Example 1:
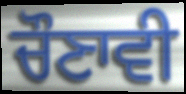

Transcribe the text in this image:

ਚੌਣਾਵੀ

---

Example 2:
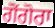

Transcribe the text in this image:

ਗੋਂਗੋਰਾ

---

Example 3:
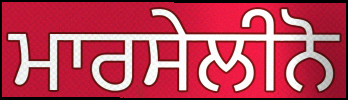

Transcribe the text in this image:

ਮਾਰਸੇਲੀਨੋ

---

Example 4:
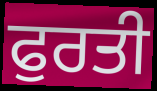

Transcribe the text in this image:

ਫੁਰਤੀ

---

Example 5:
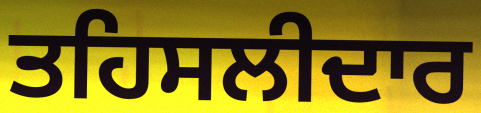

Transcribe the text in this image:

ਤਹਿਸਲੀਦਾਰ